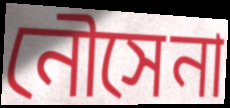
নৌসেনা